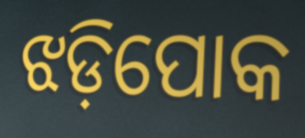
ଝଡ଼ିପୋକ